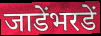
जाडेंभरडें